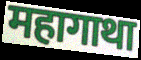
महागाथा